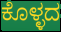
ಕೊಳ್ಳದ